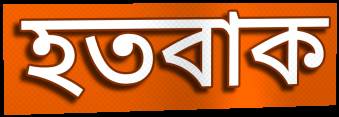
হতবাক